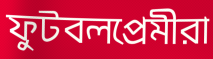
ফুটবলপ্রেমীরা